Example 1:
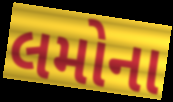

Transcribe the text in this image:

લમોના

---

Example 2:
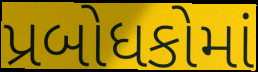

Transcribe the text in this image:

પ્રબોધકોમાં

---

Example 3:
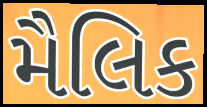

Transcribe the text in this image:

મૈલિક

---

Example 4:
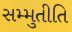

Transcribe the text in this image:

સમ્મુતીતિ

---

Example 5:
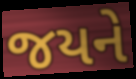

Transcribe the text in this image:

જયને